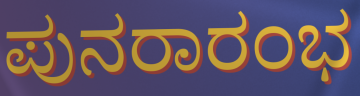
ಪುನರಾರಂಭ